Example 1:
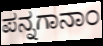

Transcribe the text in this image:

ಪನ್ನಗಾನಾಂ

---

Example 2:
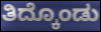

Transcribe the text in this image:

ತಿದ್ಕೊಂಡು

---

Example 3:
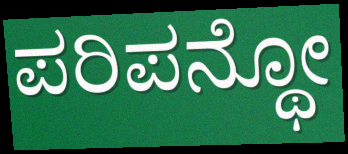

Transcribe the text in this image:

ಪರಿಪನ್ಥೋ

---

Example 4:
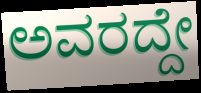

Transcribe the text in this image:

ಅವರದ್ದೇ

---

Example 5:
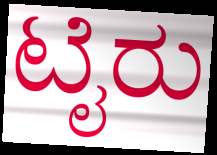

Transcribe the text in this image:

ಟೈರು